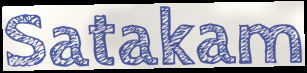
Satakam